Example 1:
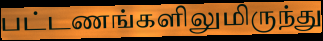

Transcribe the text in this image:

பட்டணங்களிலுமிருந்து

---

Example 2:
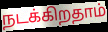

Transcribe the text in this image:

நடக்கிறதாம்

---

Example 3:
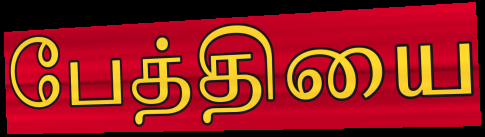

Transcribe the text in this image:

பேத்தியை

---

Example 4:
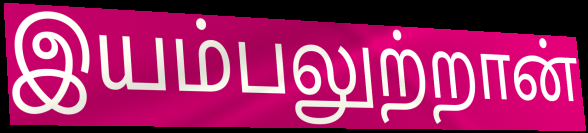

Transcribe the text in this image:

இயம்பலுற்றான்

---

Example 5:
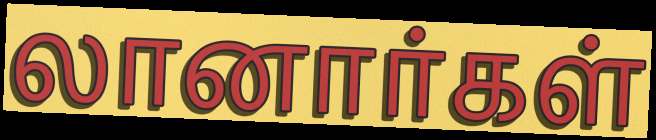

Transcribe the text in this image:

லானார்கள்